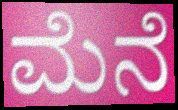
ಮೆನೆ